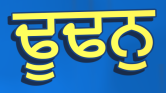
ਢੂਢਨੁ